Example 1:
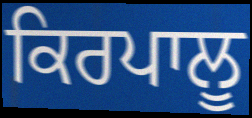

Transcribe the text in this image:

ਕਿਰਪਾਲੂ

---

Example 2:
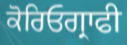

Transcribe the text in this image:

ਕੋਰਿਓਗ੍ਰਾਫੀ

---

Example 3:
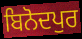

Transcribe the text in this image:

ਬਿਨੋਦਪੁਰ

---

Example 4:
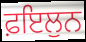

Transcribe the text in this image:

ਫ਼ਇਲੁਨ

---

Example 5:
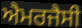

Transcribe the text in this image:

ਐਮਰਜੈਸੀ